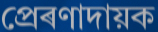
প্ৰেৰণাদায়ক